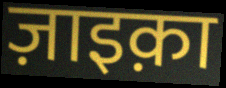
ज़ाइक़ा